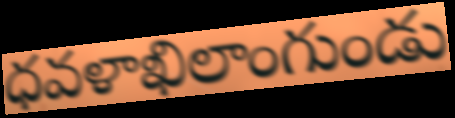
ధవళాఖిలాంగుండు